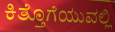
ಕಿತ್ತೊಗೆಯುವಲ್ಲಿ